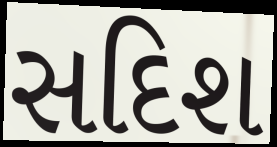
સદિશ